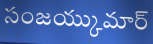
సంజయ్కుమార్